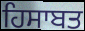
ਹਿਸਾਬਤ